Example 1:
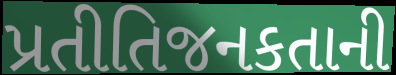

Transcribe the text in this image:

પ્રતીતિજનકતાની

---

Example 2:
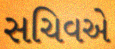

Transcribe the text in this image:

સચિવએ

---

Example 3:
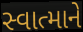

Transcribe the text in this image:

સ્વાત્માને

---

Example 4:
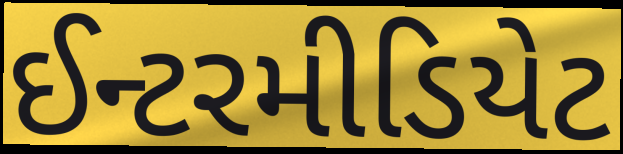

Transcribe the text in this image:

ઈન્ટરમીડિયેટ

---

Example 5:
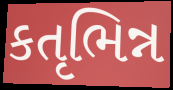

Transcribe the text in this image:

કતૃભિન્ન